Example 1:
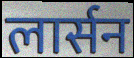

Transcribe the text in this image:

लार्सन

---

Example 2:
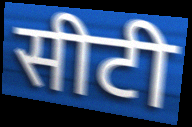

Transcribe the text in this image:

सीटी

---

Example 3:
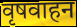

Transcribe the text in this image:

वृषवाहन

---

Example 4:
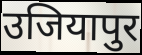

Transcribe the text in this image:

उजियापुर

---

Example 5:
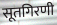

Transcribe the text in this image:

सूतगिरणी